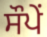
ਸੌਪੇਂ